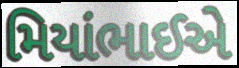
મિયાંભાઈએ